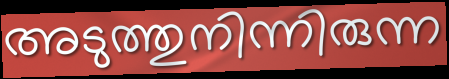
അടുത്തുനിന്നിരുന്ന